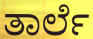
ತಾರ್ಲೆ